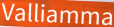
Valliamma